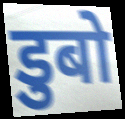
डुबो